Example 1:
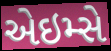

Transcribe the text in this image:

એઇમ્સે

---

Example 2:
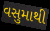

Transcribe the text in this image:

વસુમાથી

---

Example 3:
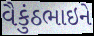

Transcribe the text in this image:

વૈકુંઠભાઇને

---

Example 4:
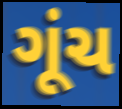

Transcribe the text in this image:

ગૂંચ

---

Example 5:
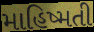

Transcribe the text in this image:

માહિષ્મતી